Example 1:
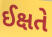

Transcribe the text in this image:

ઈક્ષતે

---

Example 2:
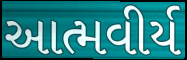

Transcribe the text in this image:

આત્મવીર્ય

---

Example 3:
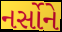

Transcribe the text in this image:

નર્સોને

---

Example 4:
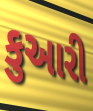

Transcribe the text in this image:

કુઆરી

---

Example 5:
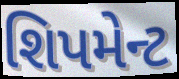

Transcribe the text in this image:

શિપમેન્ટ